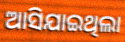
ଆସିଯାଇଥିଲା